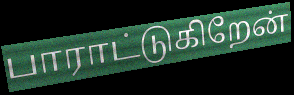
பாராட்டுகிறேன்